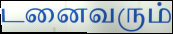
டனைவரும்